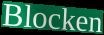
Blocken